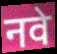
नवे